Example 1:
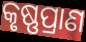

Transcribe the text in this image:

କୃଷ୍ଣପ୍ରାଣ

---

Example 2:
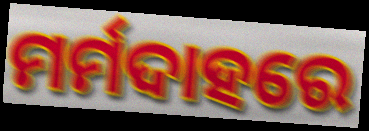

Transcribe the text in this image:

ମର୍ମଦାହରେ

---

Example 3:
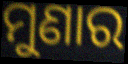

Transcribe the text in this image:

ମୁଣାର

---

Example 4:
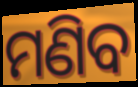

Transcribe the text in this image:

ମଣିବ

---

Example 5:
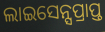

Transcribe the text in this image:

ଲାଇସେନ୍ସପ୍ରାପ୍ତ